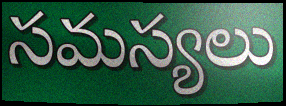
సమస్యలు